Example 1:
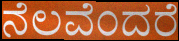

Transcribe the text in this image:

ನೆಲವೆಂದರೆ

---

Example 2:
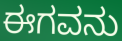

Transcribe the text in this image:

ಈಗವನು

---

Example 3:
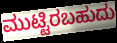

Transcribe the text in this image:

ಮುಟ್ಟಿರಬಹುದು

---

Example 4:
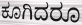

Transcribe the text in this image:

ಕೂಗಿದರೂ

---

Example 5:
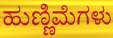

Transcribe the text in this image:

ಹುಣ್ಣಿಮೆಗಳು